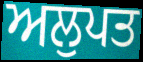
ਅਲੁਪਤ